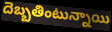
దెబ్బతింటున్నాయి